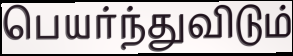
பெயர்ந்துவிடும்